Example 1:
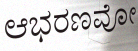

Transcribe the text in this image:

ಆಭರಣವೋ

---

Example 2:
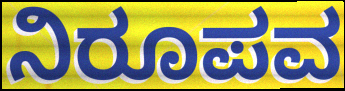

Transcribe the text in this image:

ನಿರೂಪವ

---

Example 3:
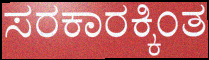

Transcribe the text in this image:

ಸರಕಾರಕ್ಕಿಂತ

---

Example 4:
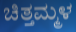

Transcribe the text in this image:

ಚಿತ್ತಮ್ಮಳ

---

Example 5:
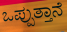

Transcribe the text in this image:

ಒಪ್ಪುತ್ತಾನೆ